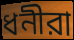
ধনীরা